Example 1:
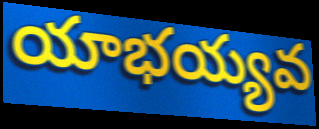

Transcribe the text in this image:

యాభయ్యవ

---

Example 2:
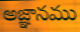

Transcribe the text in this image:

అజ్ఞానము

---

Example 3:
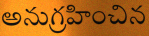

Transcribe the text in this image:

అనుగ్రహించిన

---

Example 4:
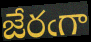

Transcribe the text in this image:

జేరఁగా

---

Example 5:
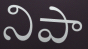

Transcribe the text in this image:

నిపా